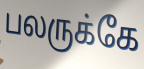
பலருக்கே